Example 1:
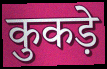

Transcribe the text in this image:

कुकड़े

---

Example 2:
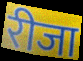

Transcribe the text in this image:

रीजा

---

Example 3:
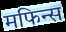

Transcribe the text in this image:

मफिन्स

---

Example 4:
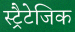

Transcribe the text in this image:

स्ट्रैटेजिक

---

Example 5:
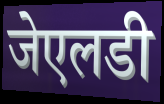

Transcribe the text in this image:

जेएलडी